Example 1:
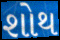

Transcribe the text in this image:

શોથ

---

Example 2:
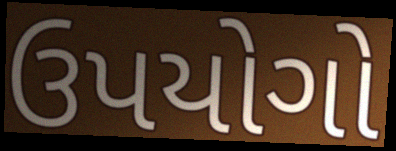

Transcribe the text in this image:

ઉપયોગો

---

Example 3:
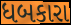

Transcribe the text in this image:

ધબકારા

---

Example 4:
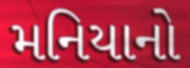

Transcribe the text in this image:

મનિયાનો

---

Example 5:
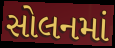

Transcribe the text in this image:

સોલનમાં